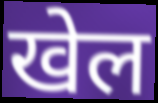
खेल